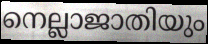
നെല്ലാജാതിയും